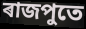
ৰাজপুতে